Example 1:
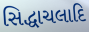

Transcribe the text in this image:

સિદ્ધાચલાદિ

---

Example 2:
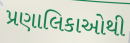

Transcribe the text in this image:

પ્રણાલિકાઓથી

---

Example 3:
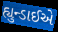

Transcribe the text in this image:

હ્યુન્ડાઈએ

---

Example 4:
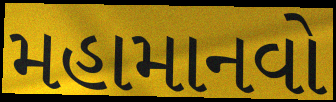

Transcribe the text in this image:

મહામાનવો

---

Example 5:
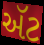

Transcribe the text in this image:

ઍટ